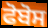
ਫੋਬੋਸ